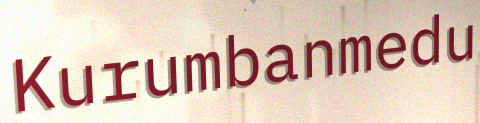
Kurumbanmedu